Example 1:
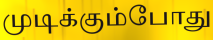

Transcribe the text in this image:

முடிக்கும்போது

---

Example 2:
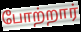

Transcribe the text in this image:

போற்றார்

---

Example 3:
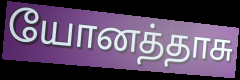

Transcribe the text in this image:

யோனத்தாசு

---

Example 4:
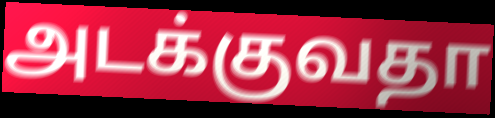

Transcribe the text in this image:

அடக்குவதா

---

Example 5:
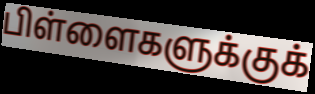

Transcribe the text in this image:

பிள்ளைகளுக்குக்